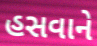
હસવાને